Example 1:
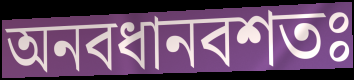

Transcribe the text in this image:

অনবধানবশতঃ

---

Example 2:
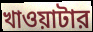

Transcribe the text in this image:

খাওয়াটার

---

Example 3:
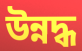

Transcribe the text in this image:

উন্নদ্ধ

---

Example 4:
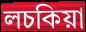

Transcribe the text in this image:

লচকিয়া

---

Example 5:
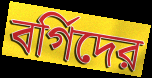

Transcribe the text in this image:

বর্গিদের